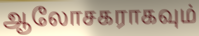
ஆலோசகராகவும்